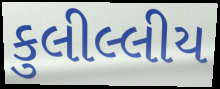
કુલીલ્લીય